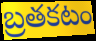
బ్రతకటం